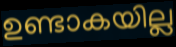
ഉണ്ടാകയില്ല